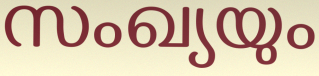
സംഖ്യയും